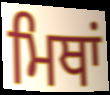
ਮਿਥਾਂ